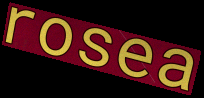
rosea